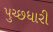
પુચ્છધારી